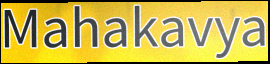
Mahakavya